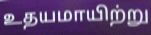
உதயமாயிற்று